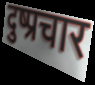
दुष्प्रचार